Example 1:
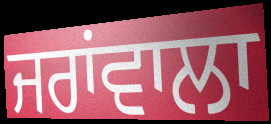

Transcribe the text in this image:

ਜਰਾਂਵਾਲਾ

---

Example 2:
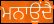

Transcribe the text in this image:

ਮਨਾਉਂਦੈ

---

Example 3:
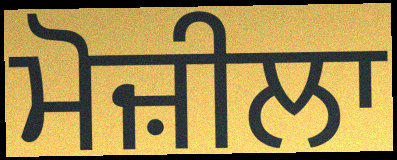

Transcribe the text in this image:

ਮੋਜ਼ੀਲਾ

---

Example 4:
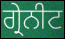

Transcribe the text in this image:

ਗ੍ਰੇਨੀਟ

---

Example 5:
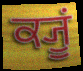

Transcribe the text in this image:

ਕ੍ਯੂਂ